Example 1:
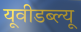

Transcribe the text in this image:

यूवीडब्ल्यू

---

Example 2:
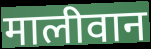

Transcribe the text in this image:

मालीवान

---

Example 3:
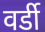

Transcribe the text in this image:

वर्डी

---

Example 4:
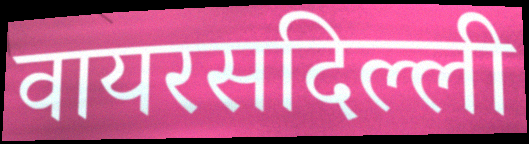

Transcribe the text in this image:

वायरसदिल्ली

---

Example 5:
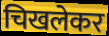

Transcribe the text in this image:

चिखलेकर